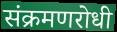
संक्रमणरोधी